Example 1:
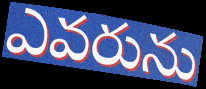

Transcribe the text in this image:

ఎవరును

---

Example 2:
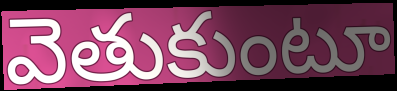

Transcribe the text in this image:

వెతుకుంటూ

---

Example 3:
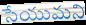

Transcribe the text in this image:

సేయుమని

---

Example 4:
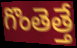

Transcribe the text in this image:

గొంతెత్తే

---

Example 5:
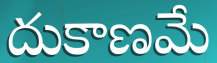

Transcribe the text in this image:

దుకాణమే